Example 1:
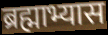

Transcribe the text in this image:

ब्रह्माभ्यास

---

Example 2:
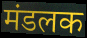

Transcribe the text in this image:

मंडलक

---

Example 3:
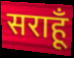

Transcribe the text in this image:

सराहूँ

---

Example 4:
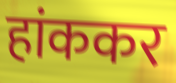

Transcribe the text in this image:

हांककर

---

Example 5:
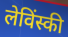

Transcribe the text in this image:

लेविंस्की